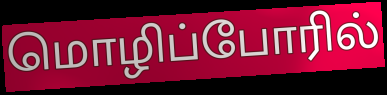
மொழிப்போரில்